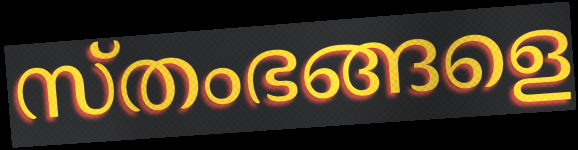
സ്തംഭങ്ങളെ